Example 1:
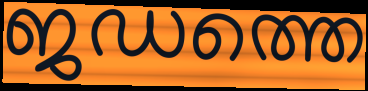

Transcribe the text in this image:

ജഡത്തെ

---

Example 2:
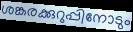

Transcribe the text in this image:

ശങ്കരക്കുറുപ്പിനോടും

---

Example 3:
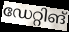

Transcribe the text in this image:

ഡേറ്റിങ്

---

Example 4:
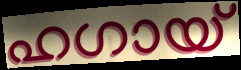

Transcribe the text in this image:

ഹഗായ്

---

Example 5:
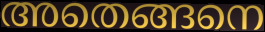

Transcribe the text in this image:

അതെങ്ങനെ